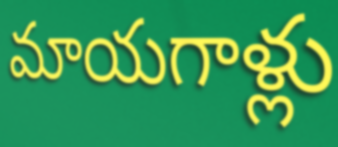
మాయగాళ్లు